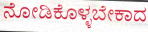
ನೋಡಿಕೊಳ್ಳಬೇಕಾದ